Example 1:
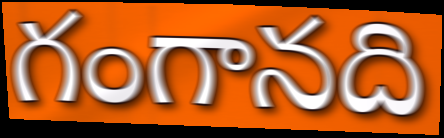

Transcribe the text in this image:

గంగానది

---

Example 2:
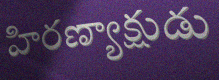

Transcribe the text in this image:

హిరణ్యాక్షుడు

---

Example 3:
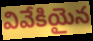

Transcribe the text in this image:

వివేకియైన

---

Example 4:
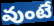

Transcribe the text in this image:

వుంటే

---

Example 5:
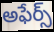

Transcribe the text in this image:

అఫేర్స్